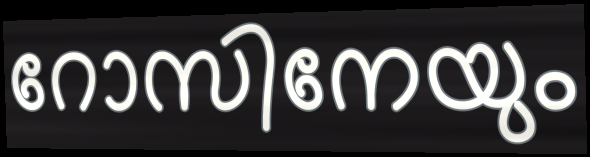
റോസിനേയും